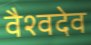
वैश्वदेव